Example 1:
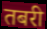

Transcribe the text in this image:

तबरी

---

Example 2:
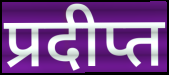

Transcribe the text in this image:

प्रदीप्त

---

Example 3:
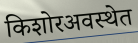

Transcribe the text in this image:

किशोरअवस्थेत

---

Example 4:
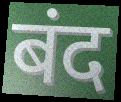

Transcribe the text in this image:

बंद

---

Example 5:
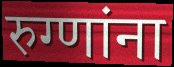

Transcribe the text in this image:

रुग्णांना